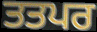
ਤਤਪਰ